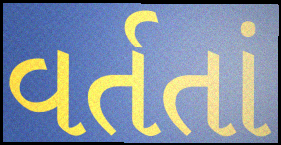
વર્તતાં